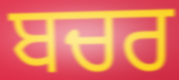
ਬਚਰ